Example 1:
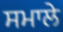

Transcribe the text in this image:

ਸਮਾਲੇ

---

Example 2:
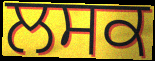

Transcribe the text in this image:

ਲਸਕ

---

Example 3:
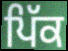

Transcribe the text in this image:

ਪਿੱਕ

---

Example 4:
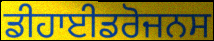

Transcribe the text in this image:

ਡੀਹਾਈਡਰੋਜਨਸ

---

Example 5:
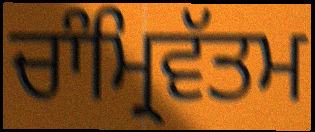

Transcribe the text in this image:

ਚਾੰਮ੍ਰਿਵੱਤਮ